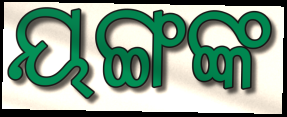
ୟଙ୍ଗଙ୍କ